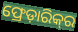
ଫ୍ରେଡ଼ାରିକ୍‍ର